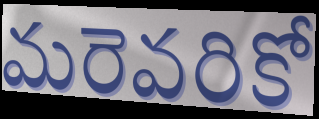
మరెవరికో